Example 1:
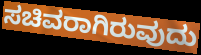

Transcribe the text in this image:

ಸಚಿವರಾಗಿರುವುದು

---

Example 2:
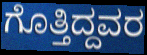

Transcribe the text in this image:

ಗೊತ್ತಿದ್ದವರ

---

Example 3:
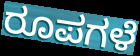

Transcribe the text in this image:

ರೂಪಗಳೆ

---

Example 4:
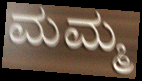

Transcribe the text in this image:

ಮಮ್ಮ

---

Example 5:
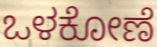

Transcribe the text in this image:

ಒಳಕೋಣೆ